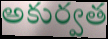
అకుర్వత